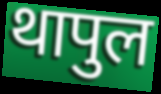
थापुल